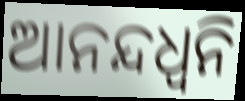
ଆନନ୍ଦଧ୍ଵନି